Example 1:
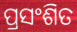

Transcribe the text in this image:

ପ୍ରସଂଶିତ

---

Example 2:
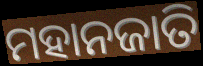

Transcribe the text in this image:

ମହାନଜାତି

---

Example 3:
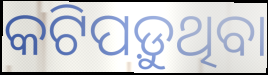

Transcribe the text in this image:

କଟିପଡ଼ୁଥିବା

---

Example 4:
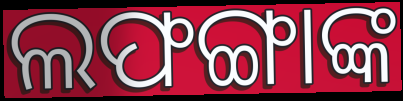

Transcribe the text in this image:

ଲଫଙ୍ଗାଙ୍କ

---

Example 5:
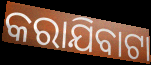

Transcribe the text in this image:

କରାଯିବାଟା